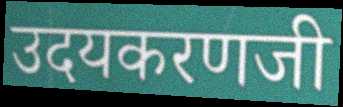
उदयकरणजी